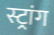
स्ट्रांग